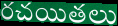
రచయితలు